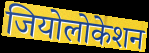
जियोलोकेशन